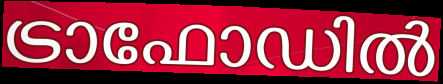
ട്രാഫോഡിൽ